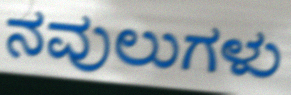
ನವುಲುಗಳು